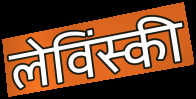
लेविंस्की